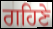
ਗਹਿਣੇ